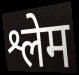
श्लेम